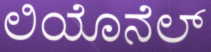
ಲಿಯೊನೆಲ್